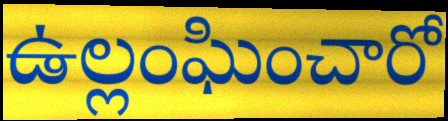
ఉల్లంఘించారో